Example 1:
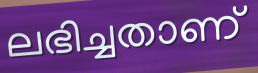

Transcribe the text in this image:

ലഭിച്ചതാണ്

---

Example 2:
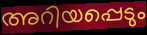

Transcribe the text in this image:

അറിയപ്പെടും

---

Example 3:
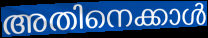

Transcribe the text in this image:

അതിനെക്കാൾ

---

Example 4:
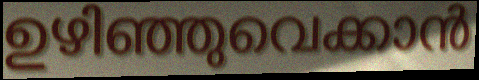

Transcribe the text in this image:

ഉഴിഞ്ഞുവെക്കാൻ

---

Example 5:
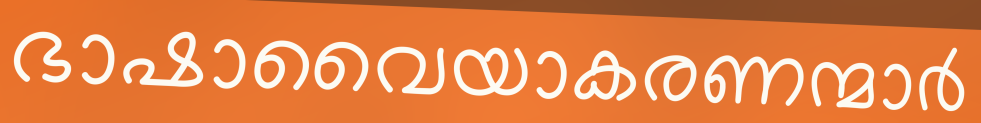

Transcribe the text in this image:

ഭാഷാവൈയാകരണന്മാർ